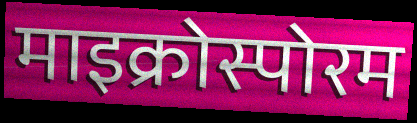
माइक्रोस्पोरम